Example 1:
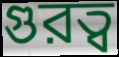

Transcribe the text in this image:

গুরত্ব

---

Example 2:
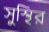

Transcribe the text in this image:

সুস্থির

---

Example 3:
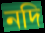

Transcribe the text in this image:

নদি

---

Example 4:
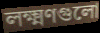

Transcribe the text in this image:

লক্ষ্মণগুলো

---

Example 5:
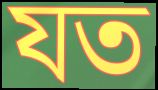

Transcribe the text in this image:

যত